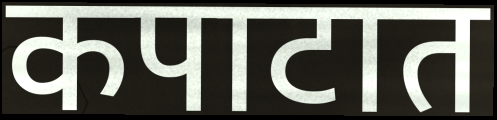
कपाटात